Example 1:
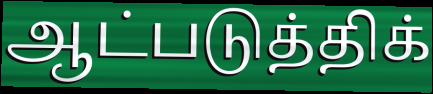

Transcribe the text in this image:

ஆட்படுத்திக்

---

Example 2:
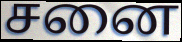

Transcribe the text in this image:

சனை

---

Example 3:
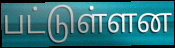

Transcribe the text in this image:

பட்டுள்ளன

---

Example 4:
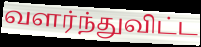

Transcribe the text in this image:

வளர்ந்துவிட்ட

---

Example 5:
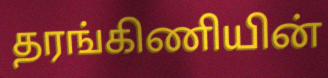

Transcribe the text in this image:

தரங்கிணியின்